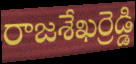
రాజశేఖర్రెడ్డి